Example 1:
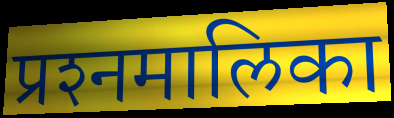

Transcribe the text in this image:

प्रश्नमालिका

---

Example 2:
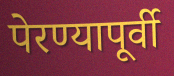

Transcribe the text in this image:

पेरण्यापूर्वी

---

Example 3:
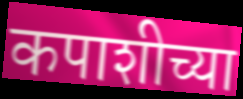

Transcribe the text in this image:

कपाशीच्या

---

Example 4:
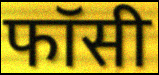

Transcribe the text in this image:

फॉसी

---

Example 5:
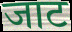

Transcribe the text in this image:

जाट